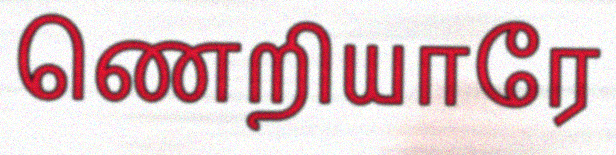
ணெறியாரே